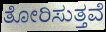
ತೋರಿಸುತ್ತವೆ